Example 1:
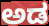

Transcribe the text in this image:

ಅಡ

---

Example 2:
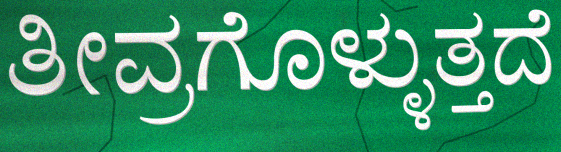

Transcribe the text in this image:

ತೀವ್ರಗೊಳ್ಳುತ್ತದೆ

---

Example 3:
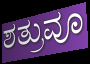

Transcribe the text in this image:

ಶತ್ರುವೂ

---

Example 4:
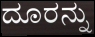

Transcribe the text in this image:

ದೂರನ್ನು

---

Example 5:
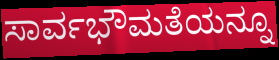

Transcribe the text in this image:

ಸಾರ್ವಭೌಮತೆಯನ್ನೂ